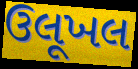
ઉલૂખલ